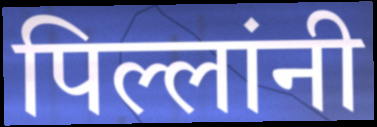
पिल्लांनी